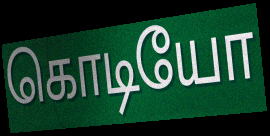
கொடியோ